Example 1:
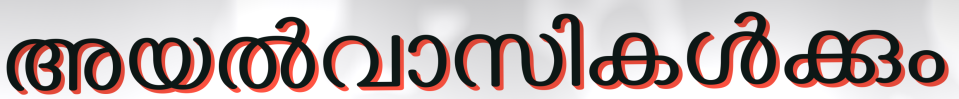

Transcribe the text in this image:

അയൽവാസികൾക്കും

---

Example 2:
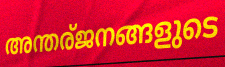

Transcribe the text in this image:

അന്തര്ജനങ്ങളുടെ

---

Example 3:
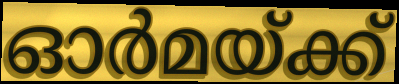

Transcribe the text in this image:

ഓർമയ്ക്ക്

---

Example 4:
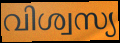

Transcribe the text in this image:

വിശ്വസ്യ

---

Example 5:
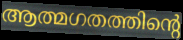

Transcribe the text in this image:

ആത്മഗതത്തിന്റെ